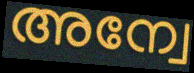
അന്വേ